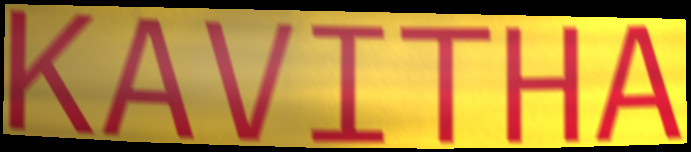
KAVITHA